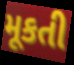
મૂકતી